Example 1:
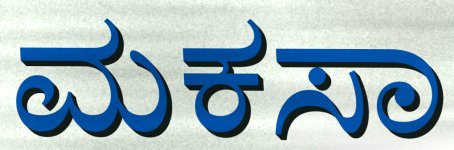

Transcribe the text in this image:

ಮಕಸಾ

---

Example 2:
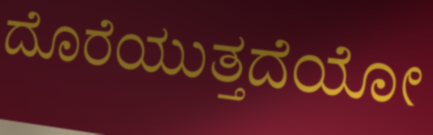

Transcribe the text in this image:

ದೊರೆಯುತ್ತದೆಯೋ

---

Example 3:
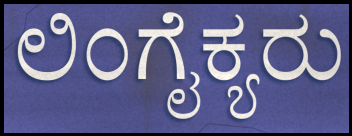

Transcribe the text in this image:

ಲಿಂಗೈಕ್ಯರು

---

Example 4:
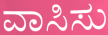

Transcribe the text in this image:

ವಾಸಿಸು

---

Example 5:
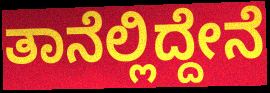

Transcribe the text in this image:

ತಾನೆಲ್ಲಿದ್ದೇನೆ